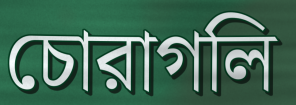
চোরাগলি